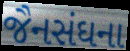
જૈનસંઘના